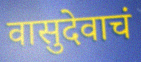
वासुदेवाचं